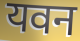
यवन